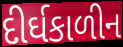
દીર્ઘકાળીન